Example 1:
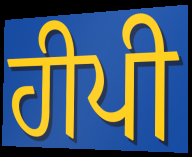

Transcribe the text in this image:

ਹੀਪੀ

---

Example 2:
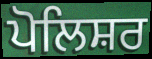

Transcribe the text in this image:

ਪੋਲਿਸ਼ਰ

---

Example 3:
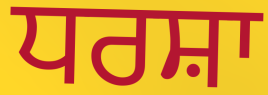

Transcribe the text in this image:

ਧਰਸ਼ਾ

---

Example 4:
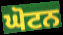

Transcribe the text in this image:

ਘੋਟਨ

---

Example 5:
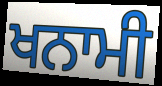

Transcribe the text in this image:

ਖਨਾਮੀ